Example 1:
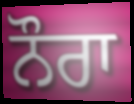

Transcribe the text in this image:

ਨੌਰਾ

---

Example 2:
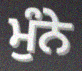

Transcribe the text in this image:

ਮੁੰਨੇ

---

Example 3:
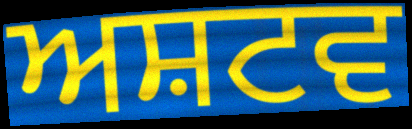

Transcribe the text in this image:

ਅਸ਼ਟਵ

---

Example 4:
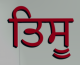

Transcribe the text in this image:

ਤਿਸੂ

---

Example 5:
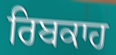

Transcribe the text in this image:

ਰਿਬਕਾਹ